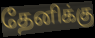
தேனிக்கு